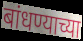
बांधण्याच्या